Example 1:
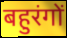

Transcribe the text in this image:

बहुरंगों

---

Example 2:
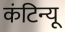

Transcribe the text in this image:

कंटिन्यू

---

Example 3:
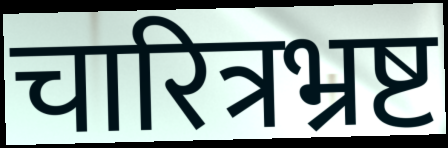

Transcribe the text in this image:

चारित्रभ्रष्ट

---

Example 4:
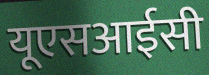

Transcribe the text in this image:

यूएसआईसी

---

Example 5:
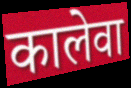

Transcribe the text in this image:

कालेवा